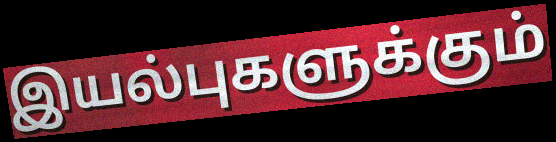
இயல்புகளுக்கும்